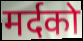
मर्दको